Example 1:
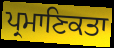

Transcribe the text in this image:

ਪ੍ਰਮਾਣਿਕਤਾ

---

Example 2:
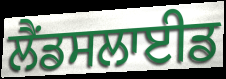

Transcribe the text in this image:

ਲੈਂਡਸਲਾਈਡ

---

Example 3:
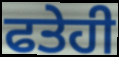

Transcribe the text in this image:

ਫਤੇਹੀ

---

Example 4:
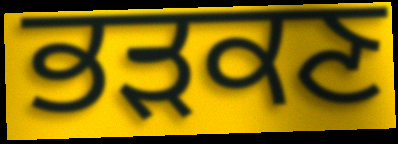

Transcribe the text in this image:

ਭੜਕਣ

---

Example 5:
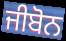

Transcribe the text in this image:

ਜੀਬੋਨ